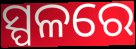
ସ୍ପଳରେ